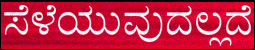
ಸೆಳೆಯುವುದಲ್ಲದೆ